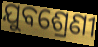
ଯୁବଶ୍ରେଣୀ